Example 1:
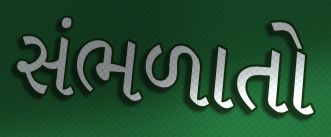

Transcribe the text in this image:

સંભળાતો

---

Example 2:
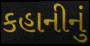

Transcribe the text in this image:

કહાનીનું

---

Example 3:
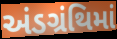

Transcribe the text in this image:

અંડગ્રંથિમાં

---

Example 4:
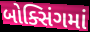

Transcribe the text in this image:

બોક્સિંગમાં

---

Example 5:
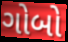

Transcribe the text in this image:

ગોબો